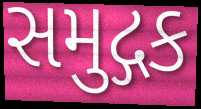
સમુદ્ગક